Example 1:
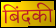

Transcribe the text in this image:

बिंदकी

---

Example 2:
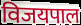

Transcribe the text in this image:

विजयपाल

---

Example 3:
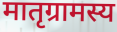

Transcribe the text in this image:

मातृग्रामस्य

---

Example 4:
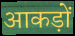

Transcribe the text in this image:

आकड़ों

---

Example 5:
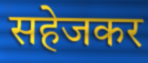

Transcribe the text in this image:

सहेजकर